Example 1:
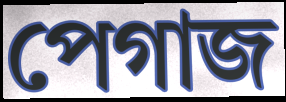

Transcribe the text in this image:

পেগাজ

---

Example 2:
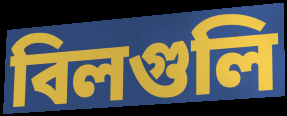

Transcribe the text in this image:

বিলগুলি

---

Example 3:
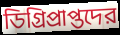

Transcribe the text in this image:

ডিগ্রিপ্রাপ্তদের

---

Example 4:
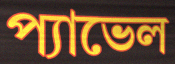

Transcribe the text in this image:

প্যাভেল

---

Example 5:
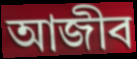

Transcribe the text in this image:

আজীব